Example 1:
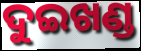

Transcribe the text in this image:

ଦୁଇଖଣ୍ଡ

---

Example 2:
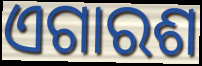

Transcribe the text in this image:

ଏଗାରଶ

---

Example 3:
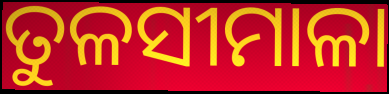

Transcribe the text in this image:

ତୁଳସୀମାଳା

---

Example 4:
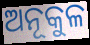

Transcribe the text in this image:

ଅନୂକୁଳ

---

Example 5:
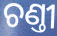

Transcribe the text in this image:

ଚଣ୍ତୀ